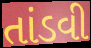
તાંડવી